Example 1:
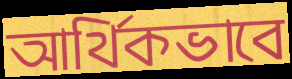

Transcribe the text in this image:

আর্থিকভাবে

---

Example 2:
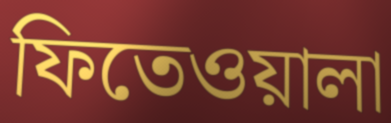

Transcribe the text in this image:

ফিতেওয়ালা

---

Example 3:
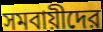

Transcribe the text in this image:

সমবায়ীদের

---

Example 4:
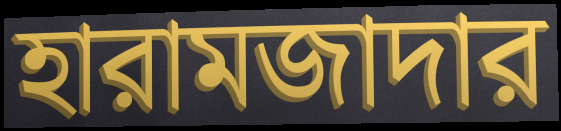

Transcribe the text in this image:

হারামজাদার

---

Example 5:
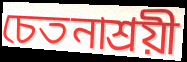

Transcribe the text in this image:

চেতনাশ্রয়ী